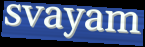
svayam